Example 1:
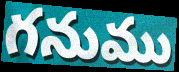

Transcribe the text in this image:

గనుము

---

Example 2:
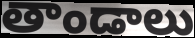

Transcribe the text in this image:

తాండాలు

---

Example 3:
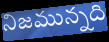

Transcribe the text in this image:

నిజమున్నది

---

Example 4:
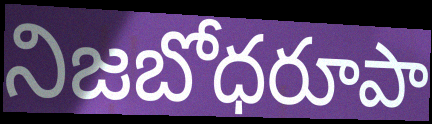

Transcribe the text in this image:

నిజబోధరూపా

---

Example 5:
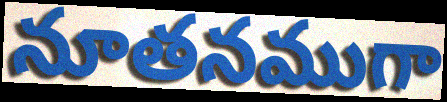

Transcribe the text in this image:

నూతనముగా